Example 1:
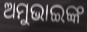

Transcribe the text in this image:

ଅମୁଭାଇଙ୍କ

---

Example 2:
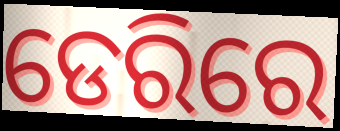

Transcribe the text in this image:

ଡେରିରେ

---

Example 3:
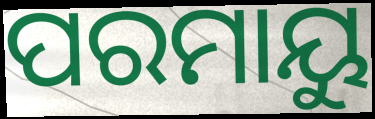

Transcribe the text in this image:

ପରମାୟୁ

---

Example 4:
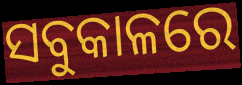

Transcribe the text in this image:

ସବୁକାଳରେ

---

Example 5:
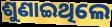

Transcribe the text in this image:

ଶୁଣାଇଥିଲେ